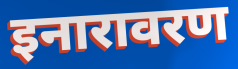
इनारावरण